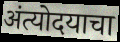
अंत्योदयाचा